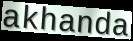
akhanda